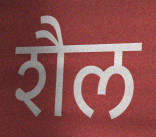
शैल